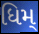
ધિમ્